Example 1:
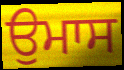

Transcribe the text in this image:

ਉਮਾਸ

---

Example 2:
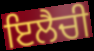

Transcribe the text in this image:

ਇਲੈਚੀ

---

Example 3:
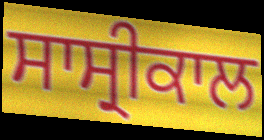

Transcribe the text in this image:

ਸਾਸ੍ਰੀਕਾਲ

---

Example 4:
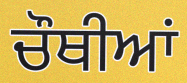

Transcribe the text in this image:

ਚੌਥੀਆਂ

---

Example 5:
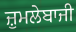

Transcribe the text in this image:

ਜ਼ੁਮਲੇਬਾਜੀ